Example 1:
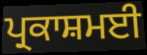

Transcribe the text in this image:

ਪ੍ਰਕਾਸ਼ਮਈ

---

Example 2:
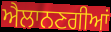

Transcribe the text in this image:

ਐਲਾਨਣਗੀਆਂ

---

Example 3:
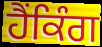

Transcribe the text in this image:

ਹੈਂਕਿੰਗ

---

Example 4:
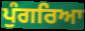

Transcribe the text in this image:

ਪੁੰਗਰਿਆ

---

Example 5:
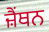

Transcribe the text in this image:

ਜ਼ੈਂਥਨ